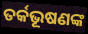
ତର୍କଭୂଷଣଙ୍କ